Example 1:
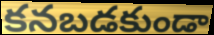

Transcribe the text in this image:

కనబడకుండా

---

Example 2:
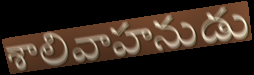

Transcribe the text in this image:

శాలివాహనుడు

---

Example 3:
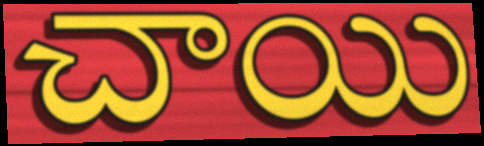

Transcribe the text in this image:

చాయి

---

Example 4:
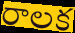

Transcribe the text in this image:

రాలక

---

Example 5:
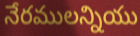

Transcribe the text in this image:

నేరములన్నియు